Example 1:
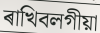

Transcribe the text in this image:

ৰাখিবলগীয়া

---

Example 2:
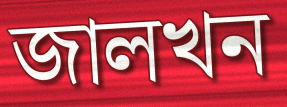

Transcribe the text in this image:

জালখন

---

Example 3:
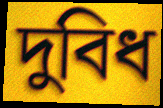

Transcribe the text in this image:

দুবিধ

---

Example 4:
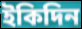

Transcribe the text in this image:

ইকিদিন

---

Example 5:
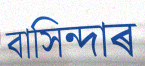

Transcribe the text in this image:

বাসিন্দাৰ